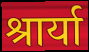
श्रार्या